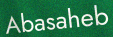
Abasaheb